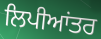
ਲਿਪੀਆਂਤਰ